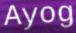
Ayog